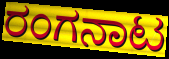
ರಂಗನಾಟ